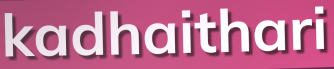
kadhaithari